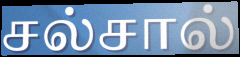
சல்சால்